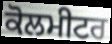
ਕੋਲਮੀਟਰ